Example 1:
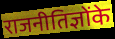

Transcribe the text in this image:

राजनीतिज्ञोंके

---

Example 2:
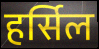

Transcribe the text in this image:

हर्सिल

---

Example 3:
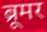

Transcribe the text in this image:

ब्रूमर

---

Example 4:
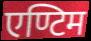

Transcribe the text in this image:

एण्टिम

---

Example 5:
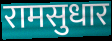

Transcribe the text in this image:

रामसुधार